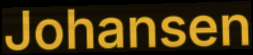
Johansen